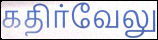
கதிர்வேலு